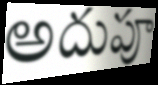
అదుపూ